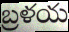
బ్రళయ